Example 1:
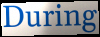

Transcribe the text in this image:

During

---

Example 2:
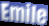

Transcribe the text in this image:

Emile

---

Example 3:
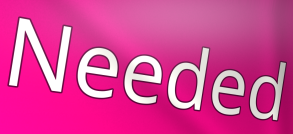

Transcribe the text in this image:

Needed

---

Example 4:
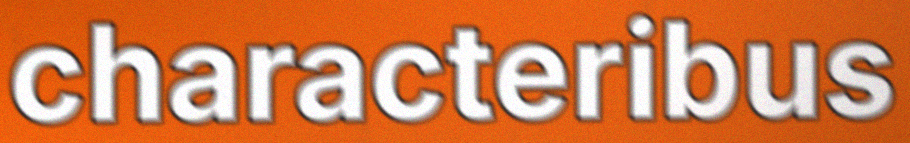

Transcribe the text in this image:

characteribus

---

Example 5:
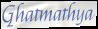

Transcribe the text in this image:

Ghatmathya